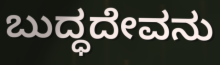
ಬುದ್ಧದೇವನು